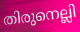
തിരുനെല്ലി